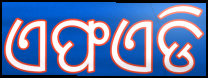
ଏଫଏଡି